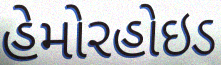
હેમોરહોઇડ